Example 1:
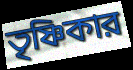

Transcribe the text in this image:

তৃষ্ণিকার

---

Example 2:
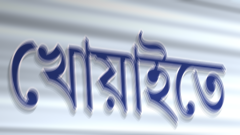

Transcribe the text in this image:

খোয়াইতে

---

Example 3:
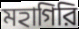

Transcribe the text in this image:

মহাগিরি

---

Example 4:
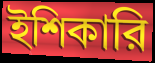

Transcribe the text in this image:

ইশিকারি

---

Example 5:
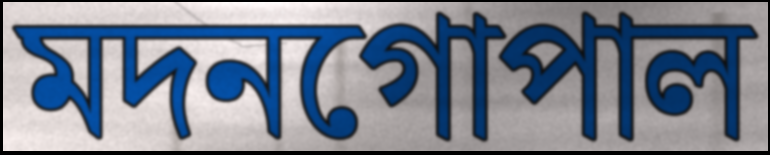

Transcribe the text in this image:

মদনগোপাল